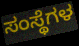
ಸಂಸ್ಥೆಗಳ